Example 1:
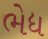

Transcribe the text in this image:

ભેદ્ય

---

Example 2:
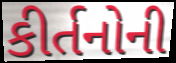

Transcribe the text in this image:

કીર્તનોની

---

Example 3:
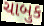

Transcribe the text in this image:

ચાબુક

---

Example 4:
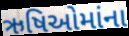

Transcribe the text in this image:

ઋષિઓમાંના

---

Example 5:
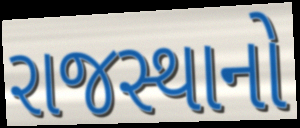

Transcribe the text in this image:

રાજસ્થાનો